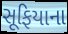
સૂફિયાના